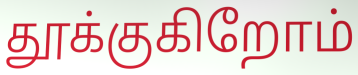
தூக்குகிறோம்